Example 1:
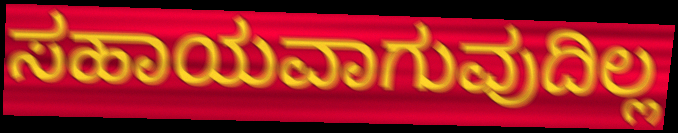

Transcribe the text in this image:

ಸಹಾಯವಾಗುವುದಿಲ್ಲ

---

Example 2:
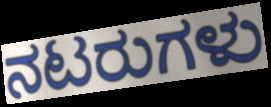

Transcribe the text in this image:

ನಟರುಗಳು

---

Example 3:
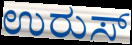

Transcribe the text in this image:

ಉರುಸ್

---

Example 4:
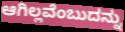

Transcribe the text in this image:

ಆಗಿಲ್ಲವೆಂಬುದನ್ನು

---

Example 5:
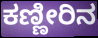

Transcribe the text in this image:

ಕಣ್ಣೀರಿನ